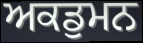
ਅਕਡੁਮਨ